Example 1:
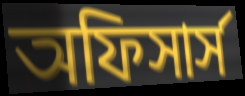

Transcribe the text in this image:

অফিসার্স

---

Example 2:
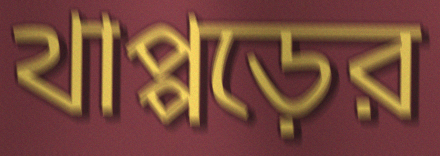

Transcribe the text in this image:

থাপ্পড়ের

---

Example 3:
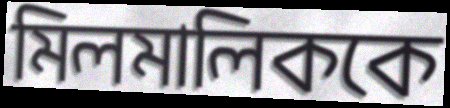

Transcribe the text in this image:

মিলমালিককে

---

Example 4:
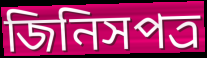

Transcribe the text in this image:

জিনিসপত্র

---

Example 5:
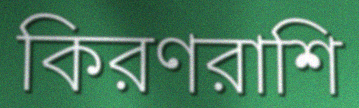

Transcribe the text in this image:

কিরণরাশি